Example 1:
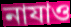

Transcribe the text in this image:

নাযাও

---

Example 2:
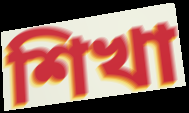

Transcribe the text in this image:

শিখা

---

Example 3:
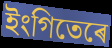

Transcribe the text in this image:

ইংগিতেৰে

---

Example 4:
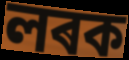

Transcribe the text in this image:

লৰক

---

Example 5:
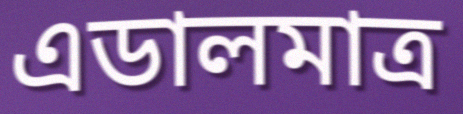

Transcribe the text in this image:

এডালমাত্ৰ